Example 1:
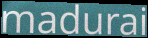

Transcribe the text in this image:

madurai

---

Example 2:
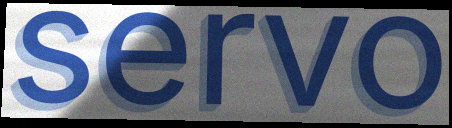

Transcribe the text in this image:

servo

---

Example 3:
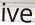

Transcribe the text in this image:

ive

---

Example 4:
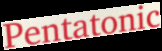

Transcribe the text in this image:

Pentatonic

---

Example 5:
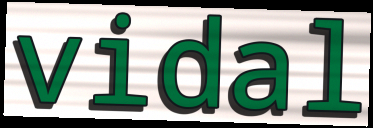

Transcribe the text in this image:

vidal